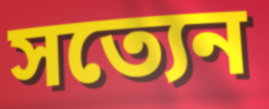
সত্যেন